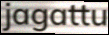
jagattu